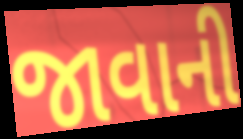
જાવાની